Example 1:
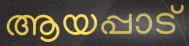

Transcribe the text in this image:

ആയപ്പാട്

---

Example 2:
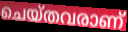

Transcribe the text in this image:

ചെയ്തവരാണ്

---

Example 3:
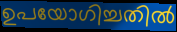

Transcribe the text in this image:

ഉപയോഗിച്ചതിൽ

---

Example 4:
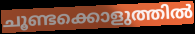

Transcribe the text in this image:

ചൂണ്ടക്കൊളുത്തിൽ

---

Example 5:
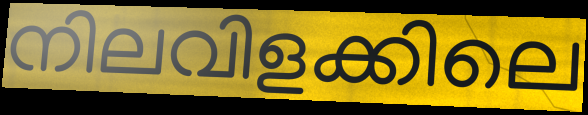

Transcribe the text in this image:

നിലവിളക്കിലെ